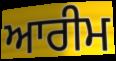
ਆਰੀਮ